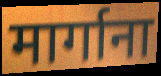
मार्गाना